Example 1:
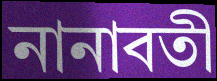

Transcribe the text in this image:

নানাবতী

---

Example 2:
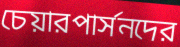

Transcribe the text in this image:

চেয়ারপার্সনদের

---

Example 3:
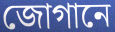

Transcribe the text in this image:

জোগানে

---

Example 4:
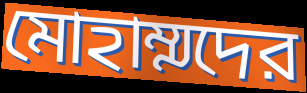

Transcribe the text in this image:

মোহাম্মদের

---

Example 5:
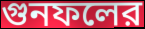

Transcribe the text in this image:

গুনফলের